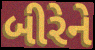
બીરેને